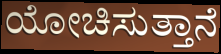
ಯೋಚಿಸುತ್ತಾನೆ